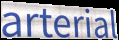
arterial